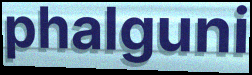
phalguni